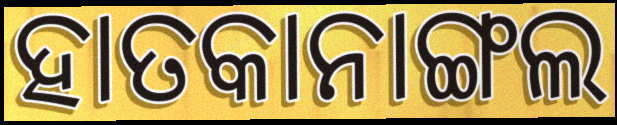
ହାତକାନାଙ୍ଗଲ